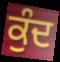
ਕੁੰਦ